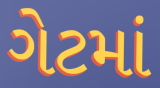
ગેટમાં